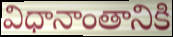
విధానాంతానికి